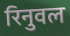
रिनुवल